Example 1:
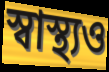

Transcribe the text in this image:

স্বাস্থ্যও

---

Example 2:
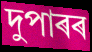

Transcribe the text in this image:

দুপাৰৰ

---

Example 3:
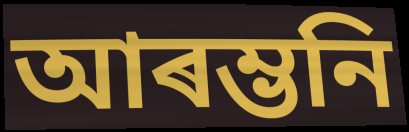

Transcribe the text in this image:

আৰম্ভনি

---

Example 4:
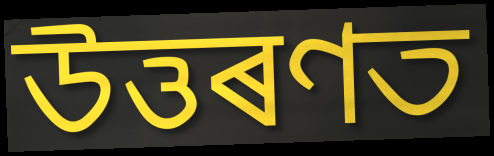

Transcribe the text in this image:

উত্তৰণত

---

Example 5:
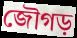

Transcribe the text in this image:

জৌগড়